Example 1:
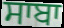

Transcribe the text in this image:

ਸਾਬਾ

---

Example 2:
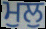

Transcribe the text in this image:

ਮੁਲੁ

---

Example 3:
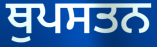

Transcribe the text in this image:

ਥੁਪਸਤਨ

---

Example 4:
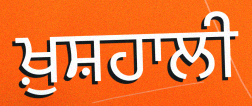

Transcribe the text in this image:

ਖ਼ੁਸ਼ਹਾਲੀ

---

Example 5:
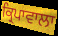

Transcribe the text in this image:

ਕ੍ਰਿਪਾਵਾਲਾ